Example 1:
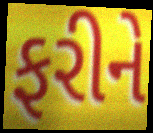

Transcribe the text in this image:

ફરીને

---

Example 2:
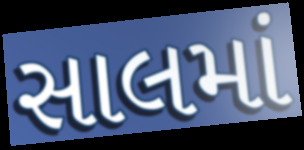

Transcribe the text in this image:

સાલમાં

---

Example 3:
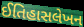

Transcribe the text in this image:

ઈતિહાસલેખન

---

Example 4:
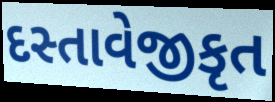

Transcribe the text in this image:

દસ્તાવેજીકૃત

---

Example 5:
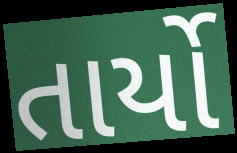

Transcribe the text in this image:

તાર્યો